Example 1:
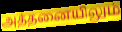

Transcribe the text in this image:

அத்தனையிலும்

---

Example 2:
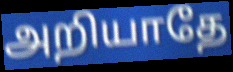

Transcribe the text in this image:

அறியாதே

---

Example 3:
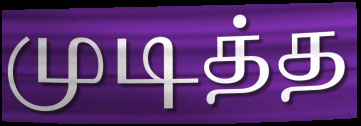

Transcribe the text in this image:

முடித்த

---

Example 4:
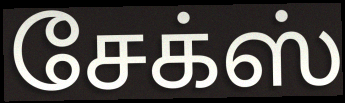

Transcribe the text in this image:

சேக்ஸ்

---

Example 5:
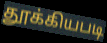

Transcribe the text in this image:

தூக்கியபடி